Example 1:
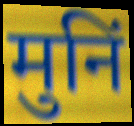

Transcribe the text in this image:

मुनिं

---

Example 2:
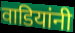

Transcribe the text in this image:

वाडियांनी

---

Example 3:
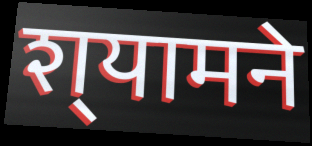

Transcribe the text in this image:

श्यामने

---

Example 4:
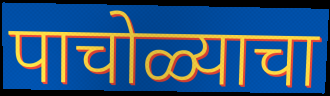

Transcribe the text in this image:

पाचोळ्याचा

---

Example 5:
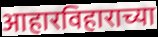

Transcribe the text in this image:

आहारविहाराच्या